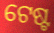
ଟେଷ୍ଟ